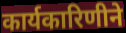
कार्यकारिणीने